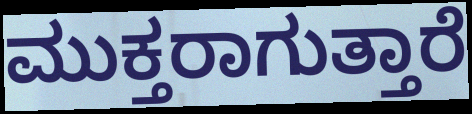
ಮುಕ್ತರಾಗುತ್ತಾರೆ